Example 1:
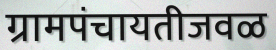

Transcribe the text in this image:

ग्रामपंचायतीजवळ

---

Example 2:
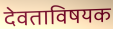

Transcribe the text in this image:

देवताविषयक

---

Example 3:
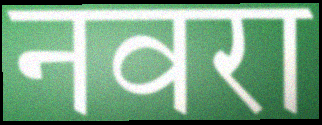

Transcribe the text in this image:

नवरा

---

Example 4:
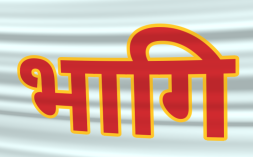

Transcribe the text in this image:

भागि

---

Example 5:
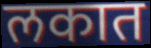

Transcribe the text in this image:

लकात